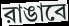
রাঙাবে